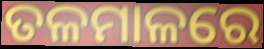
ତଳମାଳରେ